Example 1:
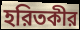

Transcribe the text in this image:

হরিতকীর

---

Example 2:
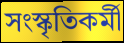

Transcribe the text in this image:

সংস্কৃতিকর্মী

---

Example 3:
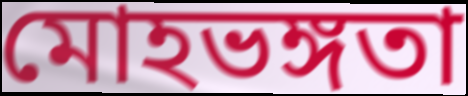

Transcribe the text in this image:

মোহভঙ্গতা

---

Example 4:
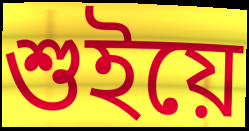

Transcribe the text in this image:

শুইয়ে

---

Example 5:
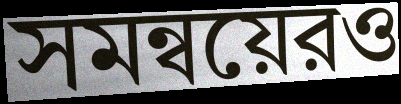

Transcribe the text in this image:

সমন্বয়েরও